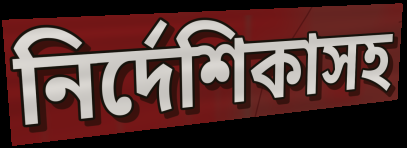
নির্দেশিকাসহ